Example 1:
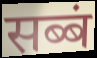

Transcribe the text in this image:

सब्बं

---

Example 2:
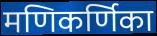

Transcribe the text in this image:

मणिकर्णिका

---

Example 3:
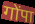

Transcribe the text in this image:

गोंपा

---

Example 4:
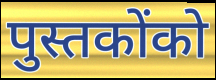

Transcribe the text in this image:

पुस्तकोंको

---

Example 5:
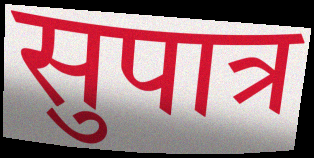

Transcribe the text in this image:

सुपात्र